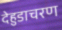
देहुडाचरण